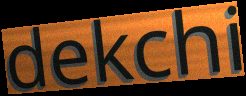
dekchi